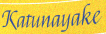
Katunayake